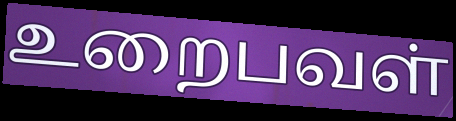
உறைபவள்